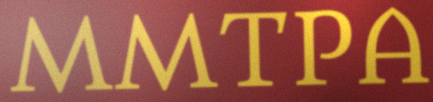
MMTPA